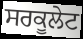
ਸਰਕੂਲੇਟ